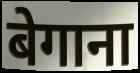
बेगाना